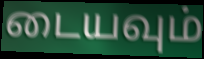
டையவும்